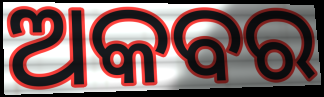
ଅକବର